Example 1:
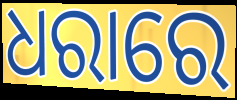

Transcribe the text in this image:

ଧରାରେ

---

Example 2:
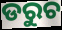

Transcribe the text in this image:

ଡରୁଚ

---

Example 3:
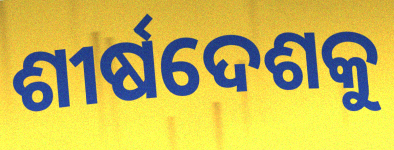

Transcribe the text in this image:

ଶୀର୍ଷଦେଶକୁ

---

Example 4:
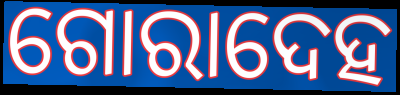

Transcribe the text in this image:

ଗୋରାଦେହ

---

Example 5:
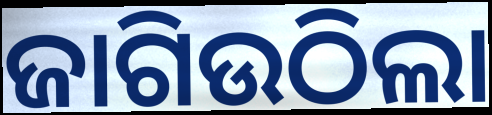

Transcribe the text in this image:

ଜାଗିଉଠିଲା